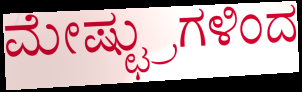
ಮೇಷ್ಟ್ರುಗಳಿಂದ